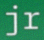
jr